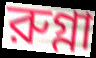
রুগ্না